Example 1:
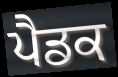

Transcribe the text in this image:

ਪੈਡਕ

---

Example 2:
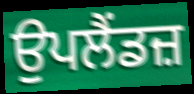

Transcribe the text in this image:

ਉਪਲੈਂਡਜ਼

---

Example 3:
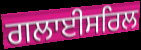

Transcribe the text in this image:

ਗਲਾਈਸਰਿਲ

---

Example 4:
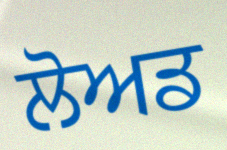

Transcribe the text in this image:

ਲੋਅਡ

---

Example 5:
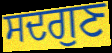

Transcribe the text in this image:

ਸਦਗੁਣ